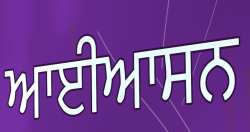
ਆਈਆਸਨ